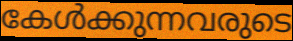
കേൾക്കുന്നവരുടെ